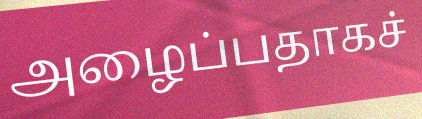
அழைப்பதாகச்